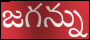
జగన్ను